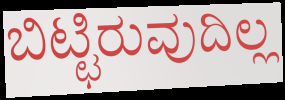
ಬಿಟ್ಟಿರುವುದಿಲ್ಲ